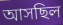
আসছিল